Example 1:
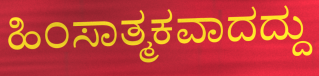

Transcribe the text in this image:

ಹಿಂಸಾತ್ಮಕವಾದದ್ದು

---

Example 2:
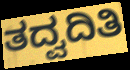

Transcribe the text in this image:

ತದ್ವದಿತಿ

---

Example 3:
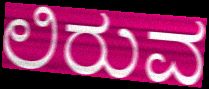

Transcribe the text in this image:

ಲಿರುವ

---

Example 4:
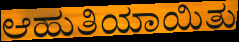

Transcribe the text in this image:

ಆಹುತಿಯಾಯಿತು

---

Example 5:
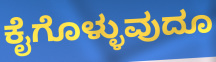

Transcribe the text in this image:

ಕೈಗೊಳ್ಳುವುದೂ